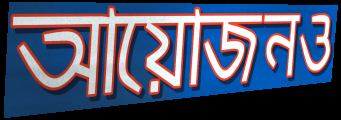
আয়োজনও